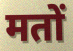
मतों